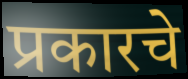
प्रकारचे